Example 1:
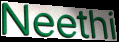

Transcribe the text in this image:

Neethi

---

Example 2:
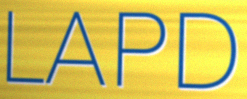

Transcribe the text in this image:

LAPD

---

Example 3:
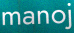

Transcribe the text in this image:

manoj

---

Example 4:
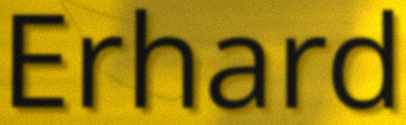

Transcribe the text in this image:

Erhard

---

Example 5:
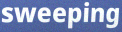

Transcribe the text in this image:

sweeping